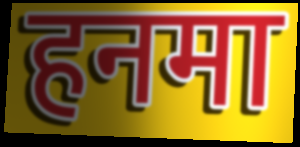
हनमा